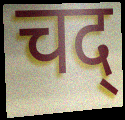
चद्